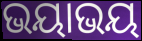
ଭୟାଭୟ